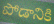
పోడానికి